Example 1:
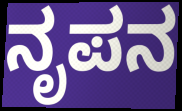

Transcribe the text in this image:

ನೃಪನ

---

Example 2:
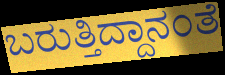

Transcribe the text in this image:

ಬರುತ್ತಿದ್ದಾನಂತೆ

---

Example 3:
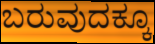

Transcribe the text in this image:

ಬರುವುದಕ್ಕೂ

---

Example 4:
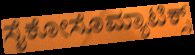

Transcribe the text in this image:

ಸೈಕೋಸೊಮ್ಯಾಟಿಕ್ಸ್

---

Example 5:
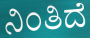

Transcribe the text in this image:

ನಿಂತಿದೆ